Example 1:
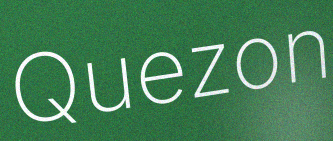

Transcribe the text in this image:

Quezon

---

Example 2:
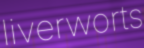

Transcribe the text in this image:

liverworts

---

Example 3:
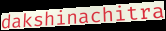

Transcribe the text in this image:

dakshinachitra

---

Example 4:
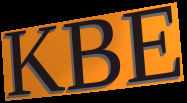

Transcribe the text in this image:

KBE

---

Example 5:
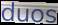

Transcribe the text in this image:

duos